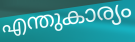
എന്തുകാര്യം